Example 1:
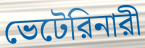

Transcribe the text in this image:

ভেটেরিনারী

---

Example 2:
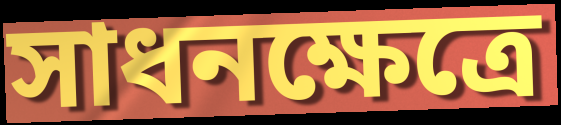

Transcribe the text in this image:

সাধনক্ষেত্রে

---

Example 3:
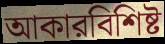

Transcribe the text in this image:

আকারবিশিষ্ট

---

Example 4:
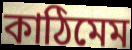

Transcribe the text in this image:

কাঠিমেম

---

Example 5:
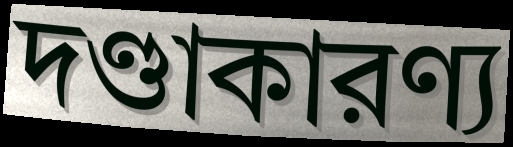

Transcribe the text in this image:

দণ্ডাকারণ্য